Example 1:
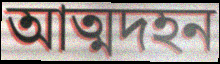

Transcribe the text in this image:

আত্মদহন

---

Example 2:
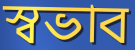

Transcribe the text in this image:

স্বভাব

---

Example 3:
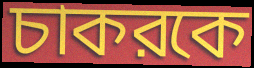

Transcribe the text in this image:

চাকরকে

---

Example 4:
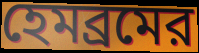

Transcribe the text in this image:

হেমব্রমের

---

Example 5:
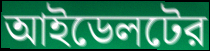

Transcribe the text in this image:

আইডেলটের